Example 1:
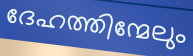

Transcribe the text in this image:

ദേഹത്തിന്മേലും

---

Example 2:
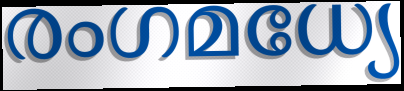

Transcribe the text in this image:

രംഗമധ്യേ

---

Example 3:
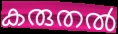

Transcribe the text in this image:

കരുതൽ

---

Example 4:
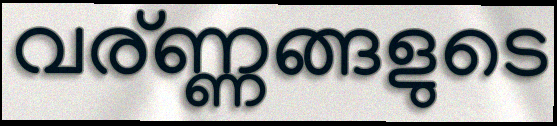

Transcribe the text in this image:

വര്ണ്ണങ്ങളുടെ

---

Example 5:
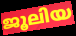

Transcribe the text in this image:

ജൂലിയ